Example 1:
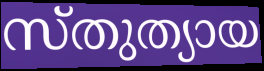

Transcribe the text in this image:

സ്തുത്യായ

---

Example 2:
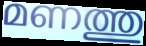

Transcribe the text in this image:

മണത്തു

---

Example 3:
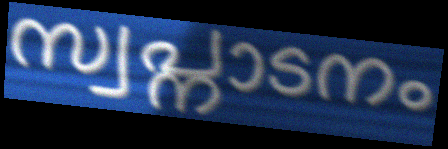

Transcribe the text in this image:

സ്വപ്നാടനം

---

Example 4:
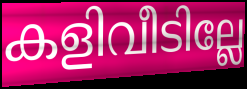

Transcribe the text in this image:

കളിവീടില്ലേ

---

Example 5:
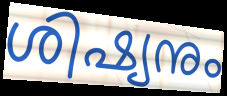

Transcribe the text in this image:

ശിഷ്യനും